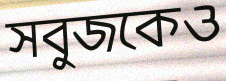
সবুজকেও